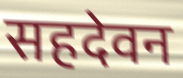
सहदेवन